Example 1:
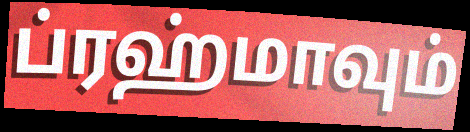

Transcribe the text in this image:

ப்ரஹ்மாவும்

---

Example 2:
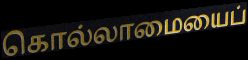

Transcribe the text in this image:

கொல்லாமையைப்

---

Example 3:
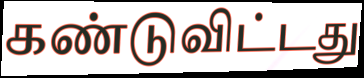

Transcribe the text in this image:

கண்டுவிட்டது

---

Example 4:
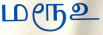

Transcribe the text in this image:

மரூஉ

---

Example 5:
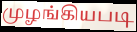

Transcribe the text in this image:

முழங்கியபடி